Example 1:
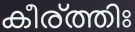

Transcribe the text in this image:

കീര്ത്തിഃ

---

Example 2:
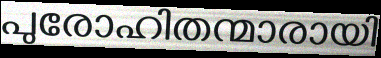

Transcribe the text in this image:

പുരോഹിതന്മാരായി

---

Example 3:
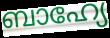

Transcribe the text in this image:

ബാഹ്യേ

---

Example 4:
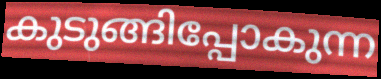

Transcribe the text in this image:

കുടുങ്ങിപ്പോകുന്ന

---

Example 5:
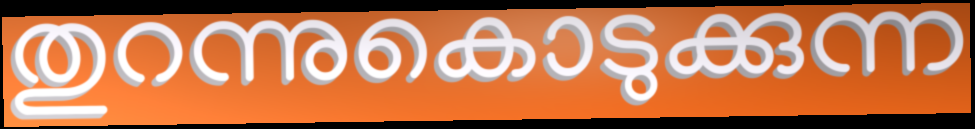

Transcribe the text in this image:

തുറന്നുകൊടുക്കുന്ന